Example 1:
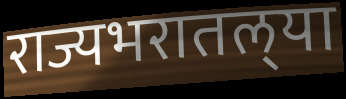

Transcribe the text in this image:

राज्यभरातल्या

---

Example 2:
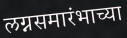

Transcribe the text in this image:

लग्नसमारंभाच्या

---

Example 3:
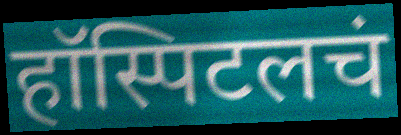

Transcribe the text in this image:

हॉस्पिटलचं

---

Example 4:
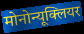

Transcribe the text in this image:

मोनोन्यूक्लियर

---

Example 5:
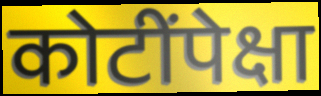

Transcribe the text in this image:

कोटींपेक्षा